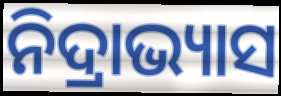
ନିଦ୍ରାଭ୍ୟାସ